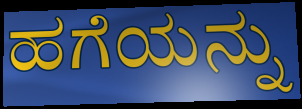
ಹಗೆಯನ್ನು